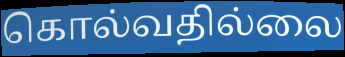
கொல்வதில்லை